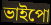
ভাইপো